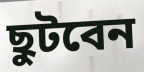
ছুটবেন